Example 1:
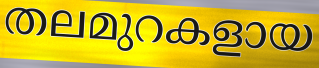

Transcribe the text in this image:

തലമുറകളായ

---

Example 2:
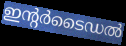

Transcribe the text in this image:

ഇന്റർടൈഡൽ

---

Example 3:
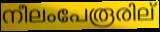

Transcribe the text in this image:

നീലംപേരൂരില്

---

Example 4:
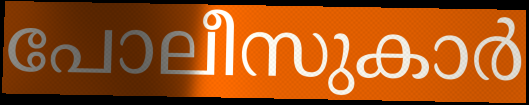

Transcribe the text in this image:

പോലീസുകാർ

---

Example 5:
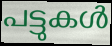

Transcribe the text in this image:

പട്ടുകൾ